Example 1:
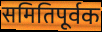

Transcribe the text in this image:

समितिपूर्वक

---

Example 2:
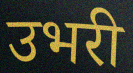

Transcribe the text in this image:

उभरी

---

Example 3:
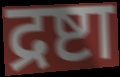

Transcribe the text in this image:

द्रष्टा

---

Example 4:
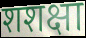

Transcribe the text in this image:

शशक्षा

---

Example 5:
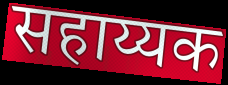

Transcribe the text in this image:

सहाय्यक